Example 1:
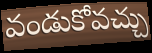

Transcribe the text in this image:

వండుకోవచ్చు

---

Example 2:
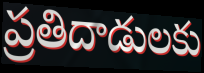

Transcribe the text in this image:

ప్రతిదాడులకు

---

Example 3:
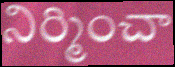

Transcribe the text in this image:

నిర్మించా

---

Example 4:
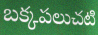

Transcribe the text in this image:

బక్కపలుచటి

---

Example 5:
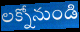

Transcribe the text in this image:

లక్నోనుండి